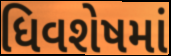
ધિવશેષમાં